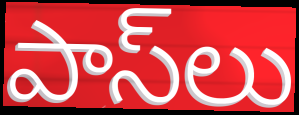
పాస్‌లు